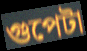
গুপেটা